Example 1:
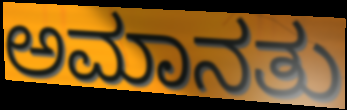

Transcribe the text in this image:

ಅಮಾನತು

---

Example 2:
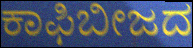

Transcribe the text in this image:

ಕಾಫಿಬೀಜದ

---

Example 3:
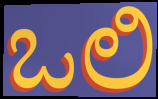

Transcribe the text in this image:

ಒಲಿ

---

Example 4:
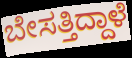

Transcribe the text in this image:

ಬೇಸತ್ತಿದ್ದಾಳೆ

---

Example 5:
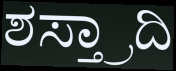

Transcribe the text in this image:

ಶಸ್ತ್ರಾದಿ